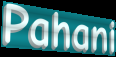
Pahani